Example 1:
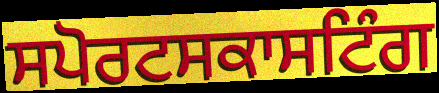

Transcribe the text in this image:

ਸਪੋਰਟਸਕਾਸਟਿੰਗ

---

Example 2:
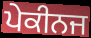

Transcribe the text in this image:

ਪੇਕੀਨਜ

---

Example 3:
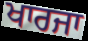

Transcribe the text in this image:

ਖਾਰਜਾ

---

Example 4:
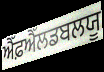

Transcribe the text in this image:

ਐੱਫ਼ਐੱਲਡਬਲਯੂ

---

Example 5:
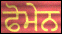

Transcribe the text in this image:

ਫੋਮੇਨ